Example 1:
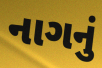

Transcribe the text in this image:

નાગનું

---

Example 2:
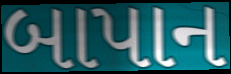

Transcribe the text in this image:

બાપાન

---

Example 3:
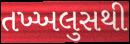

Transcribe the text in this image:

તખ્ખલુસથી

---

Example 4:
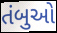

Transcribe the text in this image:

તંબુઓ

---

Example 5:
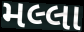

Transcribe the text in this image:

મલ્લા